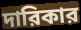
দারিকার